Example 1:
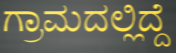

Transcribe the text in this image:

ಗ್ರಾಮದಲ್ಲಿದ್ದೆ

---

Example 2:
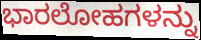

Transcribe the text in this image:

ಭಾರಲೋಹಗಳನ್ನು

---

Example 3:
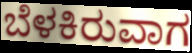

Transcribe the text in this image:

ಬೆಳಕಿರುವಾಗ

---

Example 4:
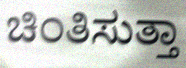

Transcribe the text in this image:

ಚಿಂತಿಸುತ್ತಾ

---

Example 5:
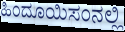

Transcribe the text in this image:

ಹಿಂದೂಯಿಸಂನಲ್ಲಿ